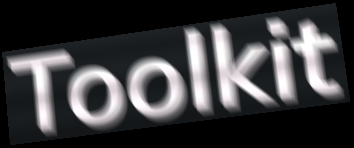
Toolkit